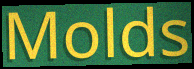
Molds